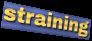
straining